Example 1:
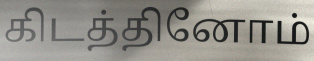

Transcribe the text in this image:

கிடத்தினோம்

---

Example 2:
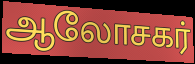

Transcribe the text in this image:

ஆலோசகர்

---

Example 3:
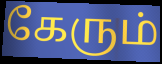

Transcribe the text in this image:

கேரும்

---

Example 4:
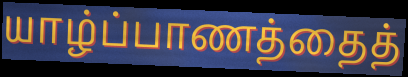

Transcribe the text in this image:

யாழ்ப்பாணத்தைத்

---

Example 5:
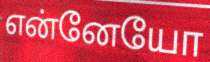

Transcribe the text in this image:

என்னேயோ